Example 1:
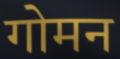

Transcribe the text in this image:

गोमन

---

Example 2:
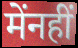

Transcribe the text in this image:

मेंनहीं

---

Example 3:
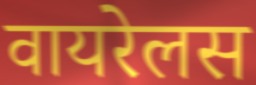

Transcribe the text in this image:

वायरेलस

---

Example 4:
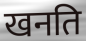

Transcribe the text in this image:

खनति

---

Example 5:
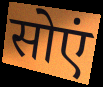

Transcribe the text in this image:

सोएं